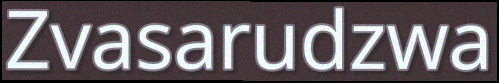
Zvasarudzwa